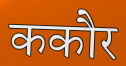
ककौर